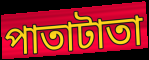
পাতাটাতা